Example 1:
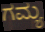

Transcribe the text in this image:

ಗಮ್ಯ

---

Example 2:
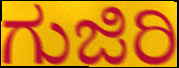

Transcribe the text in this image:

ಗುಜಿರಿ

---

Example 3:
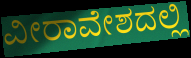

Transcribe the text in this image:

ವೀರಾವೇಶದಲ್ಲಿ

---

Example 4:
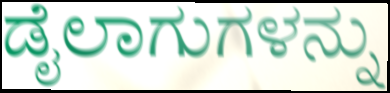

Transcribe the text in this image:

ಡೈಲಾಗುಗಳನ್ನು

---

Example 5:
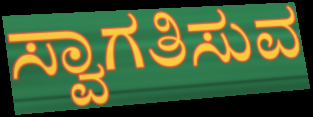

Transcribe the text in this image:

ಸ್ವಾಗತಿಸುವ